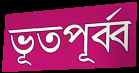
ভূতপূর্ব্ব